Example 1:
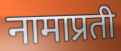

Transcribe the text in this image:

नामाप्रती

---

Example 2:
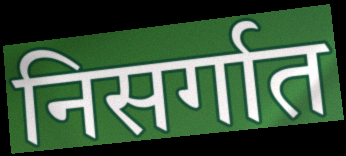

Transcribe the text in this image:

निसर्गात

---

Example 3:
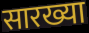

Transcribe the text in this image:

सारख्या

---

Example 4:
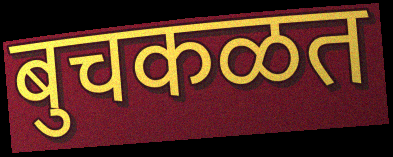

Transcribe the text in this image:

बुचकळत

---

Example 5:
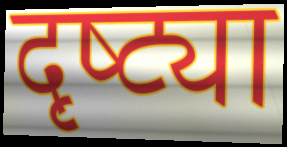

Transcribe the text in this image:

दृष्ट्या